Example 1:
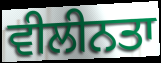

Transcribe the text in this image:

ਵੀਲੀਨਤਾ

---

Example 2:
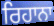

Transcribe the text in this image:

ਰਿਹਾਨਾ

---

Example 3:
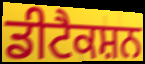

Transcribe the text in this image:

ਡੀਟੈਕਸ਼ਨ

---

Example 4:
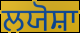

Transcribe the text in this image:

ਲਯੋਸ਼ਾ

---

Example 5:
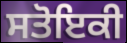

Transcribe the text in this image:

ਸਤੋਇਕੀ